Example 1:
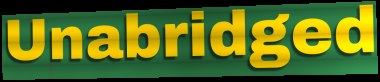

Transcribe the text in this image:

Unabridged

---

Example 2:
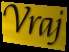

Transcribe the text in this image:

Vraj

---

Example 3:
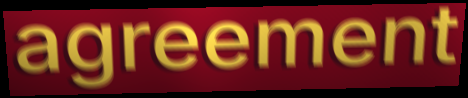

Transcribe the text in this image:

agreement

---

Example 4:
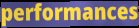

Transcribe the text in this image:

performances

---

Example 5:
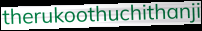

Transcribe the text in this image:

therukoothuchithanji